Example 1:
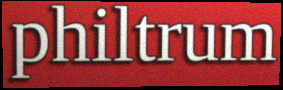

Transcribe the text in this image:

philtrum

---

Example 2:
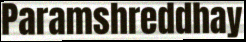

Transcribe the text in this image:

Paramshreddhay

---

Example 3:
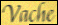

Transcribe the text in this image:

Vache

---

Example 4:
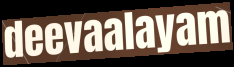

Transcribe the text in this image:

deevaalayam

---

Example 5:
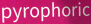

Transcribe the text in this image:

pyrophoric